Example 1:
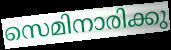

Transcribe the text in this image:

സെമിനാരിക്കു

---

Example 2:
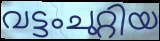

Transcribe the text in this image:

വട്ടംചുറ്റിയ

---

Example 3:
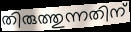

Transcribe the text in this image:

തിരുത്തുന്നതിന്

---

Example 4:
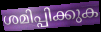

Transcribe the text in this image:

ശമിപ്പിക്കുക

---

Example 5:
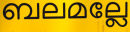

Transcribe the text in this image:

ബലമല്ലേ